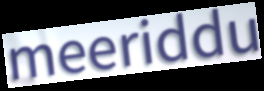
meeriddu